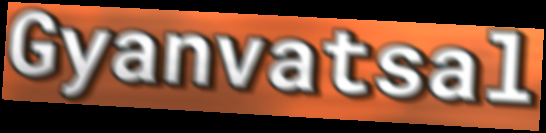
Gyanvatsal